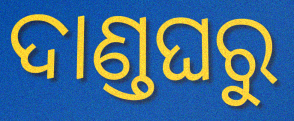
ଦାଣ୍ଡଘରୁ